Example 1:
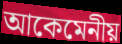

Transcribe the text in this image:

আকেমেনীয়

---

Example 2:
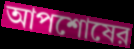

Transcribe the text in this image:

আপশোষের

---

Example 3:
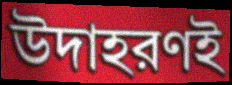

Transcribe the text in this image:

উদাহরণই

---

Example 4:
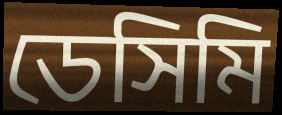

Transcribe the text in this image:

ডেসিমি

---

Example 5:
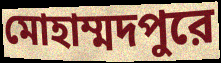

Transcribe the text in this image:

মোহাম্মদপুরে